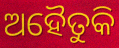
ଅହୈତୁକି